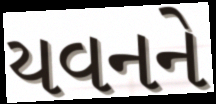
યવનને